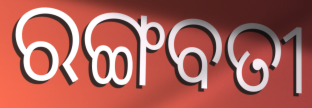
ରଙ୍ଗବତୀ